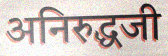
अनिरुद्धजी